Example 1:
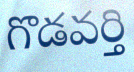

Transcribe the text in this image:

గొడవర్తి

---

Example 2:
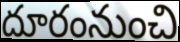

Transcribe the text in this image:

దూరంనుంచి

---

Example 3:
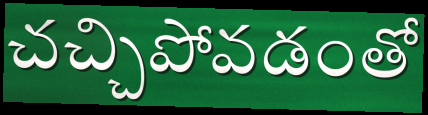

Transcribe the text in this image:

చచ్చిపోవడంతో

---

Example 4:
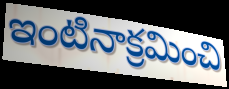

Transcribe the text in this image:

ఇంటినాక్రమించి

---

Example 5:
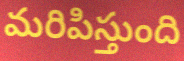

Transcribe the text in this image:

మరిపిస్తుంది